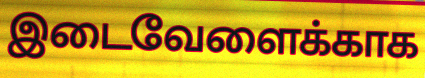
இடைவேளைக்காக